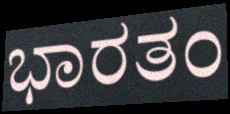
ಭಾರತಂ